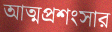
আত্মপ্রশংসার